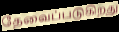
தேவைப்படுகிறது